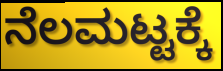
ನೆಲಮಟ್ಟಕ್ಕೆ